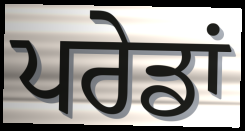
ਪਰੇਡਾਂ